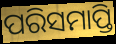
ପରିସମାପ୍ତି